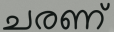
ചരണ്